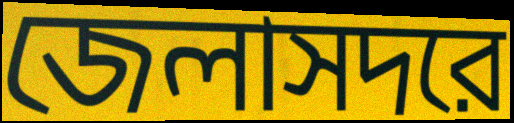
জেলাসদরে